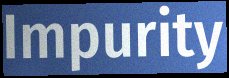
Impurity